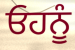
ਓਹਨੂੰ